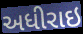
અધીરાઇ